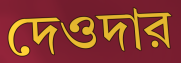
দেওদার